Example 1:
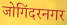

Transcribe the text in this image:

जोगिंदरनगर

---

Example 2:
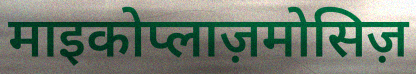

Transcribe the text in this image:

माइकोप्लाज़मोसिज़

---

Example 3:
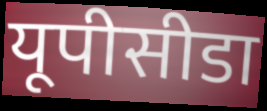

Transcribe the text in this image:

यूपीसीडा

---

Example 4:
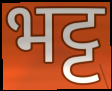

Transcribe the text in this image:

भट्ट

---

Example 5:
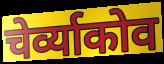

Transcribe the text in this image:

चेर्व्याकोव